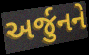
અર્જુનને